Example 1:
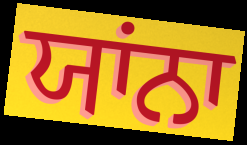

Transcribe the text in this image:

ਯਾਂਨਾ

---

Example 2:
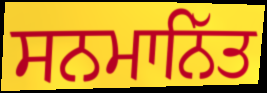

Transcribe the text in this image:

ਸਨਮਾਨਿੱਤ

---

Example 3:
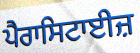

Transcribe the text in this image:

ਪੈਰਾਸਿਟਾਈਜ਼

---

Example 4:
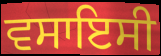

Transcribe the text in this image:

ਵਸਾਇਸੀ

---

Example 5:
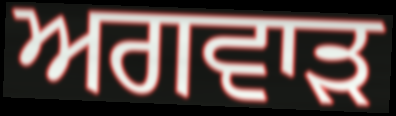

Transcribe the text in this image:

ਅਗਵਾੜ